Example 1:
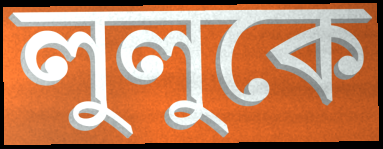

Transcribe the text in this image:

লুলুকে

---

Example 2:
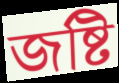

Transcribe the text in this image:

জষ্টি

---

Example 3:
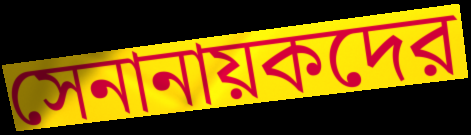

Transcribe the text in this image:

সেনানায়কদের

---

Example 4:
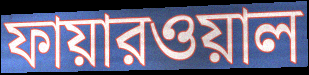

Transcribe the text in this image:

ফায়ারওয়াল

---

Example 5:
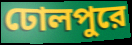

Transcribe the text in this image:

ঢোলপুরে